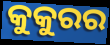
କୁକୁରର